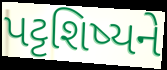
પટ્ટશિષ્યને